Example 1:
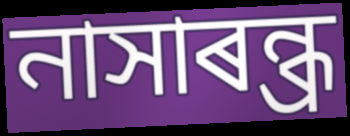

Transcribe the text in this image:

নাসাৰন্ধ্ৰ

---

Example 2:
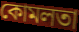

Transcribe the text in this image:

কোমলতা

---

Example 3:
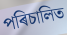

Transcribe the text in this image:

পৰিচালিত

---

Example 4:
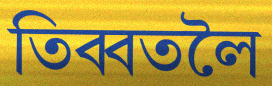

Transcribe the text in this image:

তিব্বতলৈ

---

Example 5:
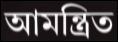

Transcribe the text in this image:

আমন্ত্ৰিত